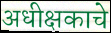
अधीक्षकाचे